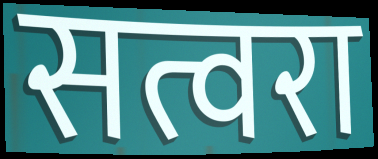
सत्वरा